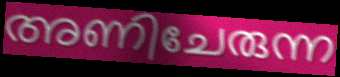
അണിചേരുന്ന